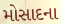
મોસાદના